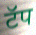
टॅप